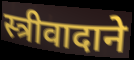
स्त्रीवादाने